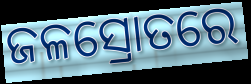
ଜଳସ୍ରୋତରେ